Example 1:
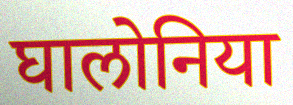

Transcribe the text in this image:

घालोनिया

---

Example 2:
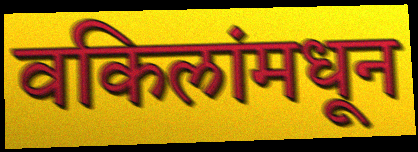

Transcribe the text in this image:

वकिलांमधून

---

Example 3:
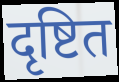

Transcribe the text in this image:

दृष्टित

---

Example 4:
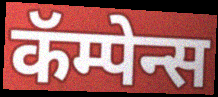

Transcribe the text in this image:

कॅम्पेन्स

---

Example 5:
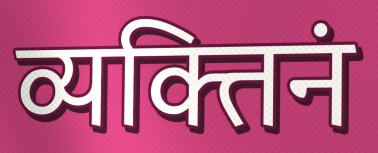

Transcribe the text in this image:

व्यक्तिनं